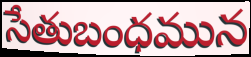
సేతుబంధమున